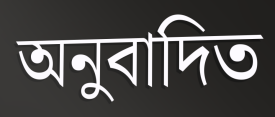
অনুবাদিত